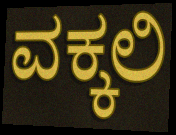
ವಕ್ಕಲಿ